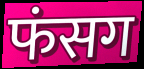
फंसग